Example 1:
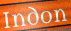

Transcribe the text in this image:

Indon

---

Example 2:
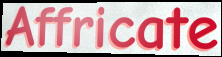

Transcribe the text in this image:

Affricate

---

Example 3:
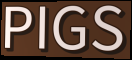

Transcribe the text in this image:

PIGS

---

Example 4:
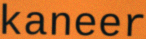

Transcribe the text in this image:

kaneer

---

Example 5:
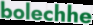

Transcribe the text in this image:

bolechhe